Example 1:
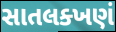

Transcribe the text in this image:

સાતલક્ખણં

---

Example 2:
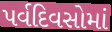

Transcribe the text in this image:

પર્વદિવસોમાં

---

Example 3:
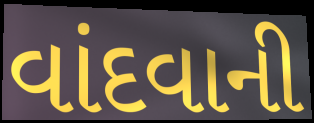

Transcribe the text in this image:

વાંદવાની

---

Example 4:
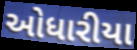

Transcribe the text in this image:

ઓધારીયા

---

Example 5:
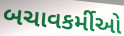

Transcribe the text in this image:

બચાવકર્મીઓ